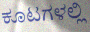
ಕೂಟಗಳಲ್ಲಿ